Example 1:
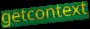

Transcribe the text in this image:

getcontext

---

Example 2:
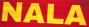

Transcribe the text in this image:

NALA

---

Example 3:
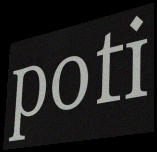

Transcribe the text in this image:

poti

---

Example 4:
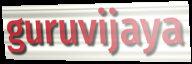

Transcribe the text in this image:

guruvijaya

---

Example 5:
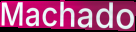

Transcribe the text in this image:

Machado